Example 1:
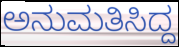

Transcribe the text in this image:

ಅನುಮತಿಸಿದ್ದ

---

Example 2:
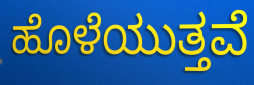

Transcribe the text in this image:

ಹೊಳೆಯುತ್ತವೆ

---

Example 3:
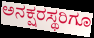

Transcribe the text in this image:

ಅನಕ್ಷರಸ್ಥರಿಗೂ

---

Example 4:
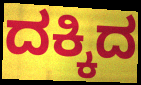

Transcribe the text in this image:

ದಕ್ಕಿದ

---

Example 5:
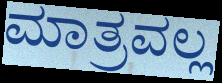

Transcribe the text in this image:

ಮಾತ್ರವಲ್ಲ